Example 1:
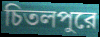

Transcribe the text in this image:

চিতলপুরে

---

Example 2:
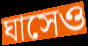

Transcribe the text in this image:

ঘাসেও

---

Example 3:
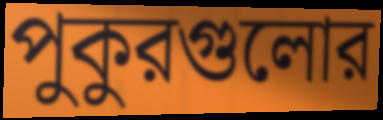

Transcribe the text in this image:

পুকুরগুলোর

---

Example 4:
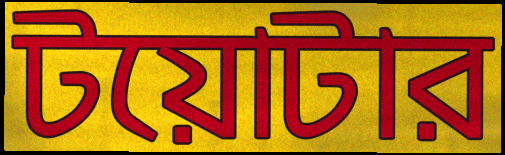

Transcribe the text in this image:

টয়োটার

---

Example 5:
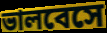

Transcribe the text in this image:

ভালবেসে